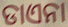
ଡାଏନା